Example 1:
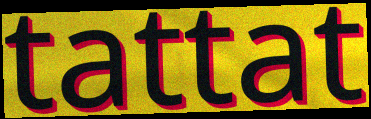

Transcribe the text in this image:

tattat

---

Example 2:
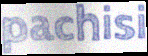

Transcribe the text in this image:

pachisi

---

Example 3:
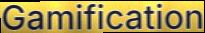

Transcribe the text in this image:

Gamification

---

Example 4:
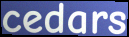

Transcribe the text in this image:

cedars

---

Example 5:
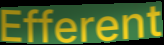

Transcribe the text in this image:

Efferent